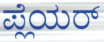
ಪ್ಲೆಯರ್